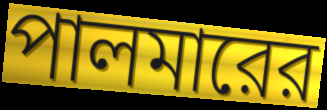
পালমারের